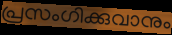
പ്രസംഗിക്കുവാനും